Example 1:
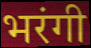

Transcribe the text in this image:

भरंगी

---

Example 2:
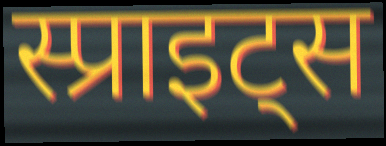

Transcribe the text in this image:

स्प्राइट्स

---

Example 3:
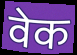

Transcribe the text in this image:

वेक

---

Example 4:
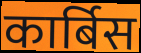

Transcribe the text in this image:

कार्बिस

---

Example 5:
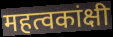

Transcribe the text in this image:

महत्वकांक्षी